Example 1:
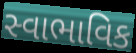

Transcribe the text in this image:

સ્વાભાવિક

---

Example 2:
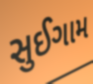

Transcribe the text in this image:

સુઈગામ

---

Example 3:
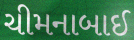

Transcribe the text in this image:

ચીમનાબાઈ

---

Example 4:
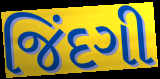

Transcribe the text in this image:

જિંદગી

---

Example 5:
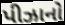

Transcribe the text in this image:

પીઝાનો